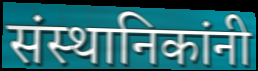
संस्थानिकांनी